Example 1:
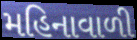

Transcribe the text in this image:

મહિનાવાળી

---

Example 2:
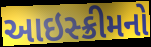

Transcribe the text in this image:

આઇસ્ક્રીમનો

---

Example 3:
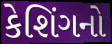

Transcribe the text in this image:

કેશિંગનો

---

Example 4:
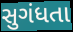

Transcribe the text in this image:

સુગંધતા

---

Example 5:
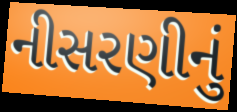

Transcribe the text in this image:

નીસરણીનું